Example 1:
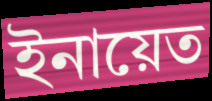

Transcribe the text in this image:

ইনায়েত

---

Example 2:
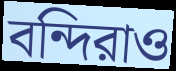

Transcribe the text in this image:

বন্দিরাও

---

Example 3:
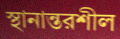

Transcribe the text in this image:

স্থানান্তরশীল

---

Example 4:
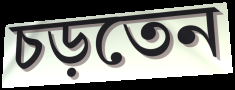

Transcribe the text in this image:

চড়তেন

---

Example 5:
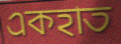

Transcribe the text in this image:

একহাত